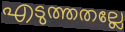
എടുത്തതല്ലേ